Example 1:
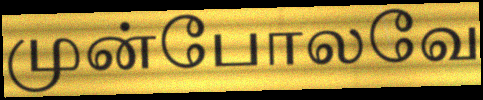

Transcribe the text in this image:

முன்போலவே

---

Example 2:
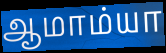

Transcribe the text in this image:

ஆமாம்யா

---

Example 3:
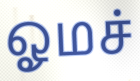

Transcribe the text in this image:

ஓமச்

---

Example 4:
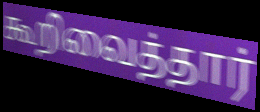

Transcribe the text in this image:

கூறிவைத்தார்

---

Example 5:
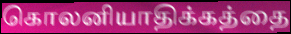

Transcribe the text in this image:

கொலனியாதிக்கத்தை